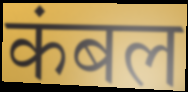
कंबल